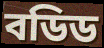
বডিড